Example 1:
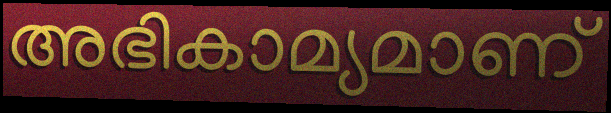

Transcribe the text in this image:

അഭികാമ്യമാണ്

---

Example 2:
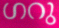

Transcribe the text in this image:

ഗറു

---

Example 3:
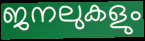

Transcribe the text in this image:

ജനലുകളും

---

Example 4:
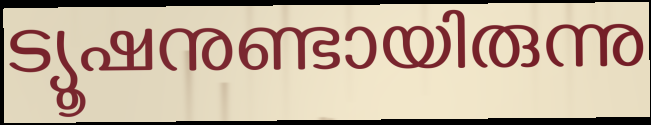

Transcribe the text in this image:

ട്യൂഷനുണ്ടായിരുന്നു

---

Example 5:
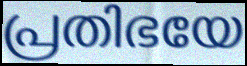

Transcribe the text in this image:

പ്രതിഭയേ